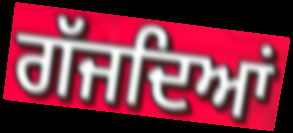
ਗੱਜਦਿਆਂ